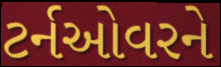
ટર્નઓવરને